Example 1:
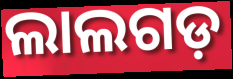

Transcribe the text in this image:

ଲାଲଗଡ଼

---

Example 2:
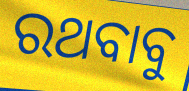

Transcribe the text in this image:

ରଥବାବୁ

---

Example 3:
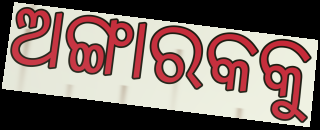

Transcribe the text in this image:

ଅଙ୍ଗାରକକୁ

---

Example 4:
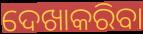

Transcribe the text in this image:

ଦେଖାକରିବା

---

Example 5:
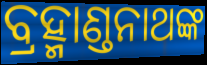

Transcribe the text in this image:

ବ୍ରହ୍ମାଣ୍ଡନାଥଙ୍କ